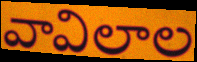
వావిలాల